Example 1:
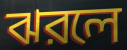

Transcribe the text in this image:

ঝরলে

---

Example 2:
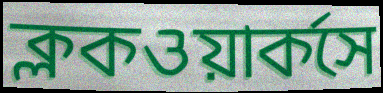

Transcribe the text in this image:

ক্লকওয়ার্কসে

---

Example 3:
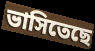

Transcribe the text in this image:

ভাসিতেছে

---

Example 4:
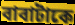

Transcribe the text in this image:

বাবাটাকে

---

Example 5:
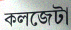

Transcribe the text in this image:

কলজেটা